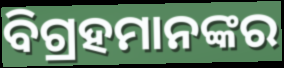
ବିଗ୍ରହମାନଙ୍କର